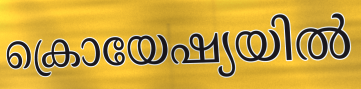
ക്രൊയേഷ്യയിൽ